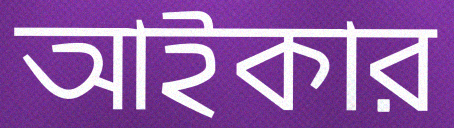
আইকার